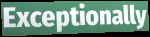
Exceptionally